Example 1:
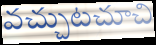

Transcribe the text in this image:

వచ్చుటచూచి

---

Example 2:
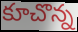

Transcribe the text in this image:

కూచొన్న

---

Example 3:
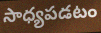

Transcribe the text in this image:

సాధ్యపడటం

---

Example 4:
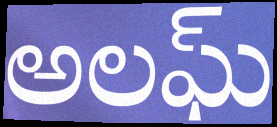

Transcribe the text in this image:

అలఘ్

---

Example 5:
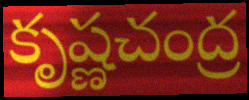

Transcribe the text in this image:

కృష్ణచంద్ర